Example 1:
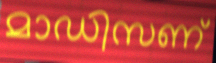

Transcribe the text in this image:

മാഡിസണ്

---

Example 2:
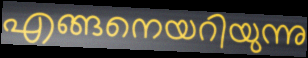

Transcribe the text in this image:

എങ്ങനെയറിയുന്നു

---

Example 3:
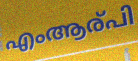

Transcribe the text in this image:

എംആര്പി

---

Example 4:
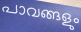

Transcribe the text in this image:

പാവങ്ങളും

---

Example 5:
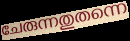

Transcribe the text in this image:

ചേരുന്നതുതന്നെ